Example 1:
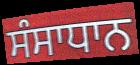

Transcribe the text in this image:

ਸੰਸਾਧਾਨ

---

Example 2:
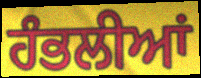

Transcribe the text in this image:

ਹੰਭਲੀਆਂ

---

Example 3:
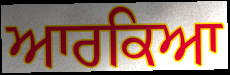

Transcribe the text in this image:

ਆਰਕਿਆ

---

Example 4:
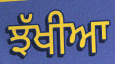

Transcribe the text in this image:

ਝੱਖੀਆ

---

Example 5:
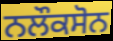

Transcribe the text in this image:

ਨਲੌਕਸੋਨ